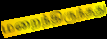
மறைந்திருந்தது